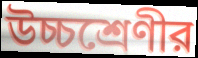
উচ্চশ্রেণীর